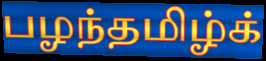
பழந்தமிழ்க்